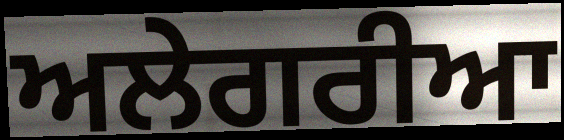
ਅਲੇਗਰੀਆ